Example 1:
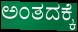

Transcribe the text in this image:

ಅಂತದಕ್ಕೆ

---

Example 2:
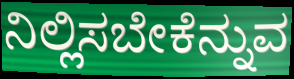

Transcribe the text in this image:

ನಿಲ್ಲಿಸಬೇಕೆನ್ನುವ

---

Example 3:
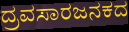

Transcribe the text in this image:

ದ್ರವಸಾರಜನಕದ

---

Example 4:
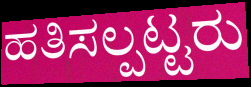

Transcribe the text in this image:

ಹತಿಸಲ್ಪಟ್ಟರು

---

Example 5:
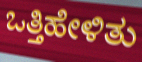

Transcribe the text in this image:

ಒತ್ತಿಹೇಳಿತು